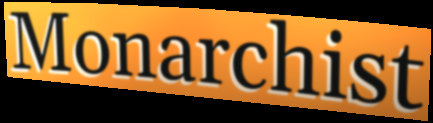
Monarchist